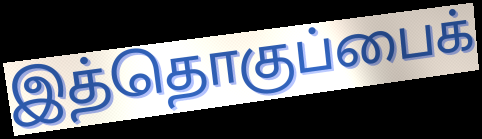
இத்தொகுப்பைக்